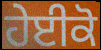
ਹੇਈਕੋ